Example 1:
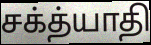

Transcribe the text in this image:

சக்த்யாதி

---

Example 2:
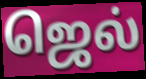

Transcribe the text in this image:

ஜெல்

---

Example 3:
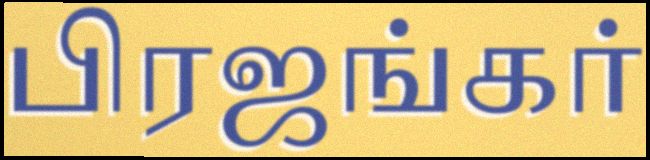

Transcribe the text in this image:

பிரஜங்கர்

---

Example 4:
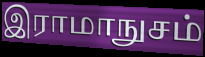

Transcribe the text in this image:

இராமாநுசம்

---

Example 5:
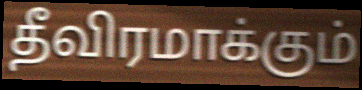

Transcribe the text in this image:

தீவிரமாக்கும்